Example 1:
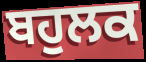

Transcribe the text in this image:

ਬਹੁਲਕ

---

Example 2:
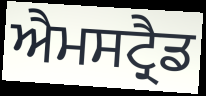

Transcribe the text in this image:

ਐਮਸਟ੍ਰੈਡ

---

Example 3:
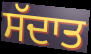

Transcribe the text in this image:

ਸੱਦਾਤ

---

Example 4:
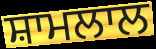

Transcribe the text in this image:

ਸ਼ਾਮਲਾਲ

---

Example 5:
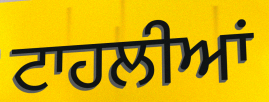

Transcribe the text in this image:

ਟਾਹਲੀਆਂ